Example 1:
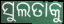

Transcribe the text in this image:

ସୁଲତାକୁ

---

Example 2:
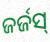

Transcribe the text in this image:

ଜର୍ଜସ୍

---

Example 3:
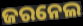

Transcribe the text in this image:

ଜରନେଲ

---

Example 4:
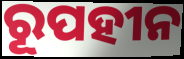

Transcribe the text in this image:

ରୂପହୀନ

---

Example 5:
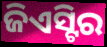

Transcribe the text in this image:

ଜିଏସ୍ଟିର